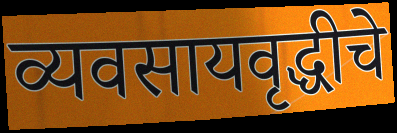
व्यवसायवृद्धीचे